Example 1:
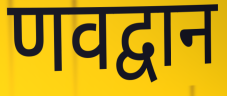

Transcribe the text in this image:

णवद्वान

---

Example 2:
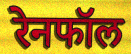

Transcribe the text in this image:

रेनफॉल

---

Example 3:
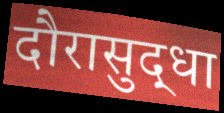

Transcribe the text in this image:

दौरासुद्धा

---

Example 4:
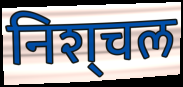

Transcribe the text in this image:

निश्चल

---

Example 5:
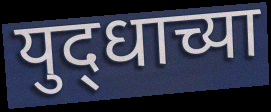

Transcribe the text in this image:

युद्धाच्या